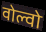
वोल्वो